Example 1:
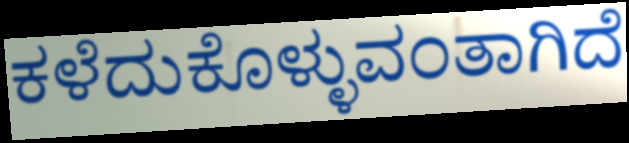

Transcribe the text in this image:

ಕಳೆದುಕೊಳ್ಳುವಂತಾಗಿದೆ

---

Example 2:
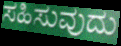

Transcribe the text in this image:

ಸಹಿಸುವುದು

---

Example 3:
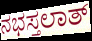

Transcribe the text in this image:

ನಭಸ್ತಲಾತ್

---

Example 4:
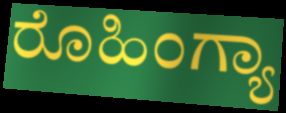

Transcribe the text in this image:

ರೊಹಿಂಗ್ಯಾ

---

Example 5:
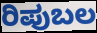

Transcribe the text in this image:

ರಿಪುಬಲ